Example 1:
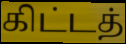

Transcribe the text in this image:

கிட்டத்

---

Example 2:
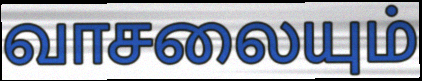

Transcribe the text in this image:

வாசலையும்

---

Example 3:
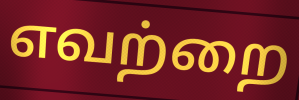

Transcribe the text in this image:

எவற்றை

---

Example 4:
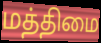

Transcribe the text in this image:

மத்திமை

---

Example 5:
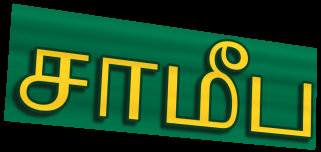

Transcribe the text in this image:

சாமீப